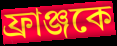
ফ্রাঞ্জকে